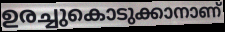
ഉരച്ചുകൊടുക്കാനാണ്